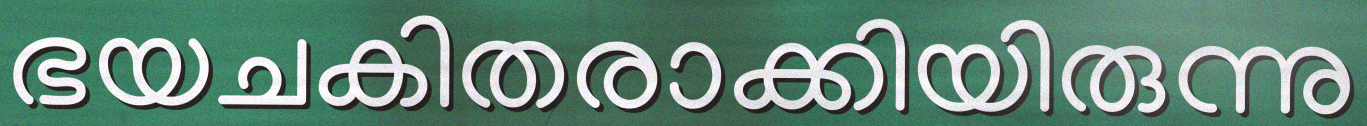
ഭയചകിതരാക്കിയിരുന്നു